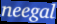
neegal